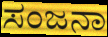
ಸಂಜನಾ